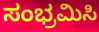
ಸಂಭ್ರಮಿಸಿ